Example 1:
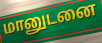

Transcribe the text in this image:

மானுடனை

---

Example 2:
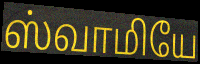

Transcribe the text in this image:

ஸ்வாமியே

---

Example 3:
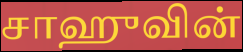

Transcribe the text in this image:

சாஹுவின்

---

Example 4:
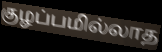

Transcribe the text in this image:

குழப்பமில்லாத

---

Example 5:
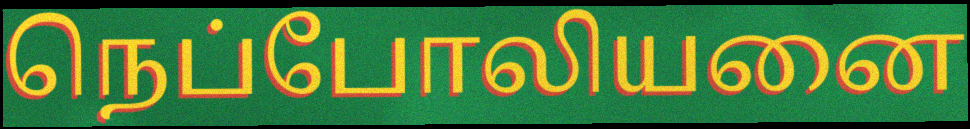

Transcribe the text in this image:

நெப்போலியனை